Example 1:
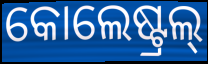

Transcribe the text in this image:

କୋଲେଷ୍ଟ୍ରଲ୍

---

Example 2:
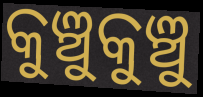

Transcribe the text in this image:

କୁଞ୍ଚୁକୁଞ୍ଚୁ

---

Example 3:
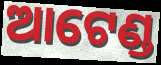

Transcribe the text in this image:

ଆଟେଣ୍ଡ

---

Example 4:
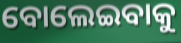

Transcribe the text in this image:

ବୋଲେଇବାକୁ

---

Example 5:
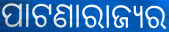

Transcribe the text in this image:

ପାଟଣାରାଜ୍ୟର